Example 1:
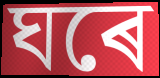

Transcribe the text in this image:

ঘৰে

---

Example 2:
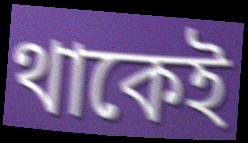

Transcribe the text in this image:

থাকেই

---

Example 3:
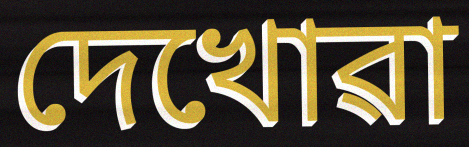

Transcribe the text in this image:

দেখোৱা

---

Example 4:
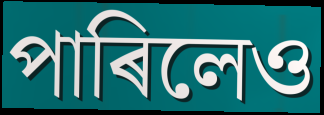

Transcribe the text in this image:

পাৰিলেও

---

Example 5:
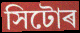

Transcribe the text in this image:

সিটোৰ